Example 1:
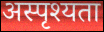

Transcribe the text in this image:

अस्पृश्यता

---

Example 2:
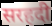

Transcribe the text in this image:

सरहदी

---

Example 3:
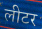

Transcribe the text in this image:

लीटर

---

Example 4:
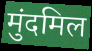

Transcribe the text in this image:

मुंदमिल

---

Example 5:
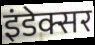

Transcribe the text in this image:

इंडेक्सर